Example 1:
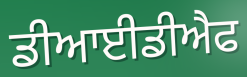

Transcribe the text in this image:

ਡੀਆਈਡੀਐਫ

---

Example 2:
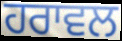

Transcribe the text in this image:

ਹਰਾਵਲ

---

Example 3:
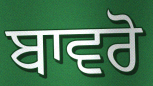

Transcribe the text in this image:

ਬਾਵਰੋ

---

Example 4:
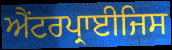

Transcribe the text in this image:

ਐਂਟਰਪ੍ਰਾਈਜਿਸ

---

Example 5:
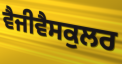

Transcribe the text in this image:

ਵੈਜੀਵੈਸਕੁਲਰ